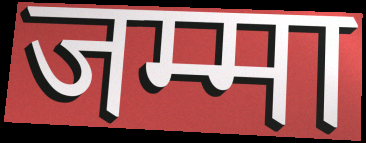
जम्मा